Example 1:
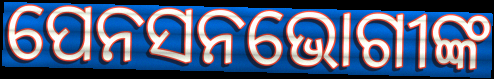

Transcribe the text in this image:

ପେନସନଭୋଗୀଙ୍କ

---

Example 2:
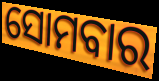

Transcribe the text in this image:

ସୋମବାର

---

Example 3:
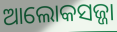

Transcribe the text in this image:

ଆଲୋକସଜ୍ଜା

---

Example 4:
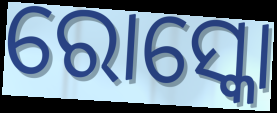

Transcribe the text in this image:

ରୋସ୍କୋ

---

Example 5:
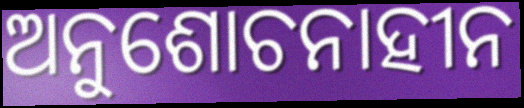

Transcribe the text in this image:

ଅନୁଶୋଚନାହୀନ